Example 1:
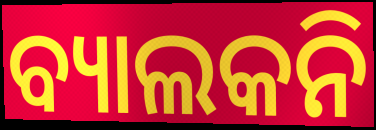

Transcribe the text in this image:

ବ୍ୟାଲକନି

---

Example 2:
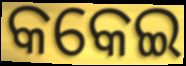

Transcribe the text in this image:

କକେଇ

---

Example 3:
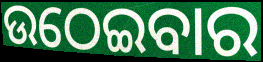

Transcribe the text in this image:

ଉଠେଇବାର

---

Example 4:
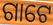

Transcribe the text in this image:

ଗାଟେ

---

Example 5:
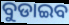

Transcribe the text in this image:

ବୁଡାଇବ